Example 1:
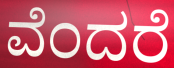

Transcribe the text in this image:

ವೆಂದರೆ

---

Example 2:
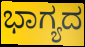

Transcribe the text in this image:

ಭಾಗ್ಯದ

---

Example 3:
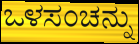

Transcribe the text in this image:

ಒಳಸಂಚನ್ನು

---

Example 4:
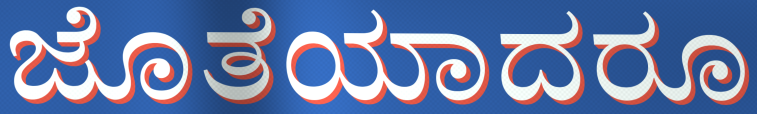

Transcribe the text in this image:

ಜೊತೆಯಾದರೂ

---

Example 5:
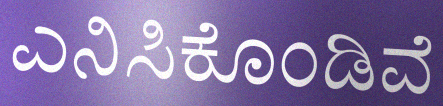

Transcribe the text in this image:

ಎನಿಸಿಕೊಂಡಿವೆ